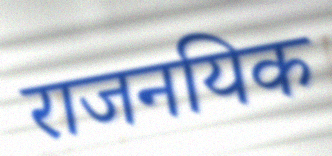
राजनयिक